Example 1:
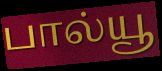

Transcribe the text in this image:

பால்யூ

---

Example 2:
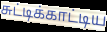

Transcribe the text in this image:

சுட்டிக்காட்டிய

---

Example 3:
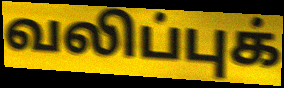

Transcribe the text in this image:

வலிப்புக்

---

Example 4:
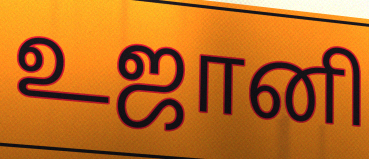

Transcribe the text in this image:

உஜானி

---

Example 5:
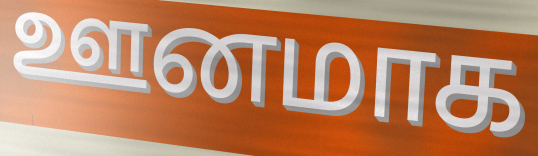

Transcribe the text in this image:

ஊனமாக